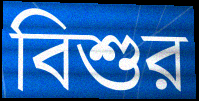
বিশুর